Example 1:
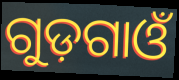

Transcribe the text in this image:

ଗୁଡ଼ଗାଓଁ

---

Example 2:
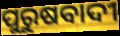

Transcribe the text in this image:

ପୁରୁଷବାଦୀ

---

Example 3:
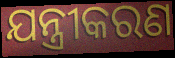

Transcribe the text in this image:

ଯନ୍ତ୍ରୀକରଣ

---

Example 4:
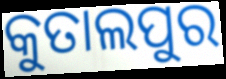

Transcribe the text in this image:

କୁତାଲପୁର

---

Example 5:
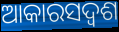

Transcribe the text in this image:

ଆକାରସଦ୍ୱଶ